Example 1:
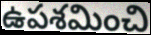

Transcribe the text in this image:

ఉపశమించి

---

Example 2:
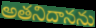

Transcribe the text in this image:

అతనిదానను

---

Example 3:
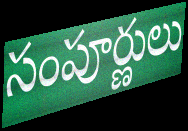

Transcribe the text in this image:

సంపూర్ణులు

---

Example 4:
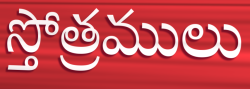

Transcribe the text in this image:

స్తోత్రములు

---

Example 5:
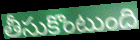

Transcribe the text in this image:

తీసుకొంటుంది